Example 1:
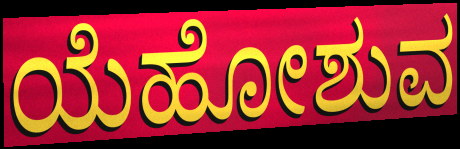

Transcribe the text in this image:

ಯೆಹೋಶುವ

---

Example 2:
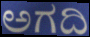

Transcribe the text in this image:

ಅಗದಿ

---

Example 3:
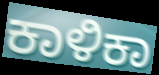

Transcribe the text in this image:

ಕಾಳಿಕಾ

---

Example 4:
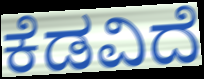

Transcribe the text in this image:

ಕೆಡವಿದೆ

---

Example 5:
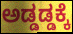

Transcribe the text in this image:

ಅಡ್ಡಡ್ಡಕ್ಕೆ